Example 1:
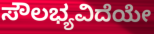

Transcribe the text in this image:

ಸೌಲಭ್ಯವಿದೆಯೇ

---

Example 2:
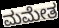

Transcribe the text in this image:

ಮಮೇತ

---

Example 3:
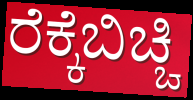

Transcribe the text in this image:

ರೆಕ್ಕೆಬಿಚ್ಚಿ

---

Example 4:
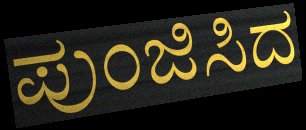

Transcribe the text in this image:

ಪುಂಜಿಸಿದ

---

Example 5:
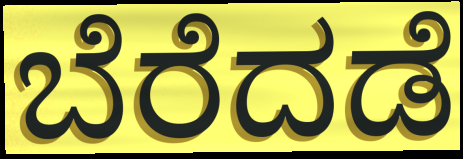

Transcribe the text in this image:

ಬೆರೆದಡೆ